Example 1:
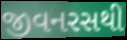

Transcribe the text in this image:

જીવનરસથી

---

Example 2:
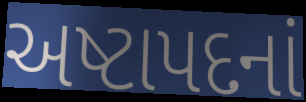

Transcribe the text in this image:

અષ્ટાપદનાં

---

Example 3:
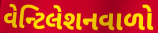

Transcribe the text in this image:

વેન્ટિલેશનવાળો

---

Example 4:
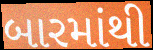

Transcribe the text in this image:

બારમાંથી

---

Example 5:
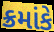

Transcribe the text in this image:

ક્રમાંકે